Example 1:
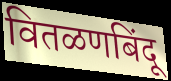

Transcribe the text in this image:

वितळणबिंदू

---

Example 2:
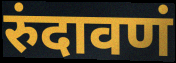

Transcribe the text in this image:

रुंदावणं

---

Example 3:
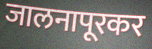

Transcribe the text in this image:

जालनापूरकर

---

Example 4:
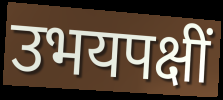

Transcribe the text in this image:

उभयपक्षीं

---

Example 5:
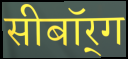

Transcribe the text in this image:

सीबॉर्ग